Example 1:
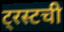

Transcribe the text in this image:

ट्रस्टची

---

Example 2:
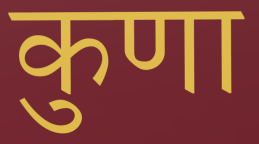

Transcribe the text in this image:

कुणा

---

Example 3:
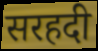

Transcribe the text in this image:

सरहदी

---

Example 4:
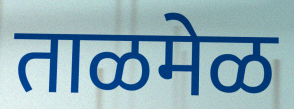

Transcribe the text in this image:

ताळमेळ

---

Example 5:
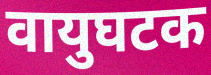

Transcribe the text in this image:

वायुघटक